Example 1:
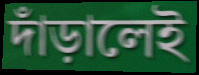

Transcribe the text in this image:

দাঁড়ালেই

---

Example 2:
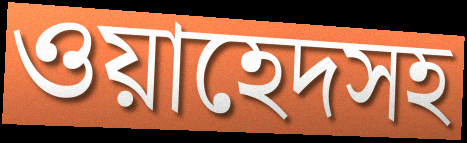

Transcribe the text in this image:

ওয়াহেদসহ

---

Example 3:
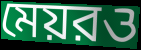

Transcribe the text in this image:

মেয়রও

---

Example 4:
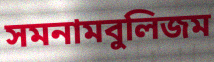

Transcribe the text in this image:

সমনামবুলিজম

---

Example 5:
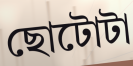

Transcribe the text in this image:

ছোটোটা